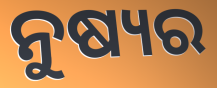
ନୁଷ୍ୟର